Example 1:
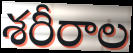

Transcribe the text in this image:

శరీరాల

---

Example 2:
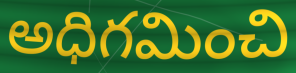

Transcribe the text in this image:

అధిగమించి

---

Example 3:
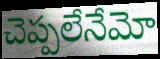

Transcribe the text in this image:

చెప్పలేనేమో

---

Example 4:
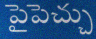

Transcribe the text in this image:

పైపెచ్చు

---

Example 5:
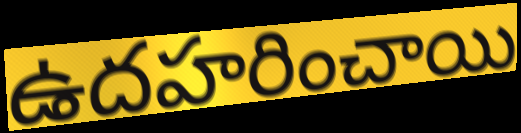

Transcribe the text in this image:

ఉదహరించాయి